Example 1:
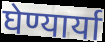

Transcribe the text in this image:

घेण्यार्या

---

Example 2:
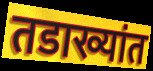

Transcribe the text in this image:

तडाख्यांत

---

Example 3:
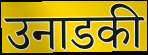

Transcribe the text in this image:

उनाडकी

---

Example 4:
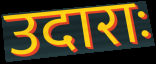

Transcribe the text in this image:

उदाराः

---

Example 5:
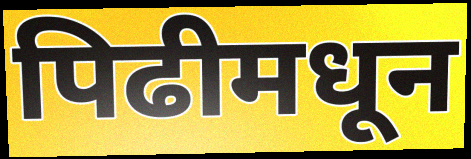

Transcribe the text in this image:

पिढीमधून